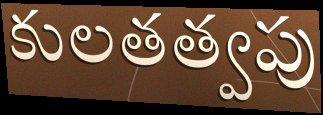
కులతత్వపు